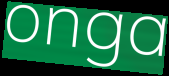
onga